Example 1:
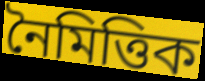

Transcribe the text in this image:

নৈমিত্তিক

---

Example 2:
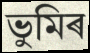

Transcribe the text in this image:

ভুমিৰ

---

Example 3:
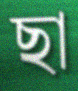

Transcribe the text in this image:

ছা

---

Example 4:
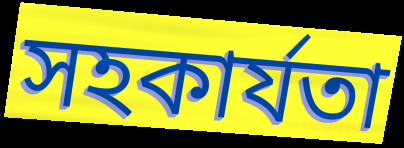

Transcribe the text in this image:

সহকাৰ্যতা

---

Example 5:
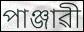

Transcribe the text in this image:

পাঞ্জাৱী